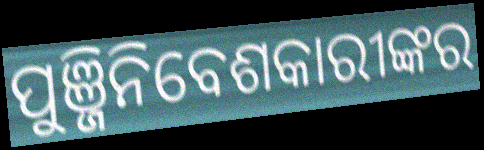
ପୁଞ୍ଜିନିବେଶକାରୀଙ୍କର